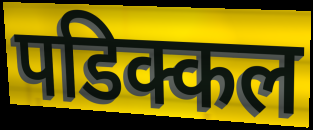
पडिक्कल